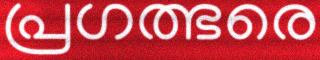
പ്രഗത്ഭരെ